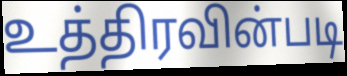
உத்திரவின்படி